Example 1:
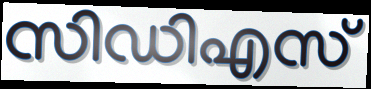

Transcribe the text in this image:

സിഡിഎസ്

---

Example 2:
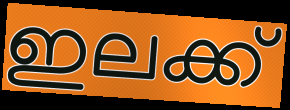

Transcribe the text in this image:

ഇലക്ക്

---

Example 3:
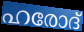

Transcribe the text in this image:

ഹരോദ്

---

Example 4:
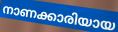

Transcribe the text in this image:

നാണക്കാരിയായ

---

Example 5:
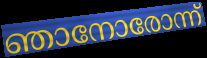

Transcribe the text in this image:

ഞാനോരോന്ന്